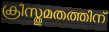
ക്രിസ്തുമതത്തിന്